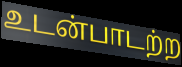
உடன்பாடற்ற